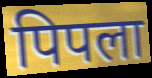
पिपला